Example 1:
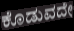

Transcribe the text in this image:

ಕೊಡುವದೇ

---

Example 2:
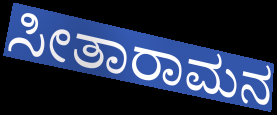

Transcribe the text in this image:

ಸೀತಾರಾಮನ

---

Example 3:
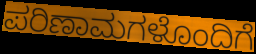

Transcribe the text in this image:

ಪರಿಣಾಮಗಳೊಂದಿಗೆ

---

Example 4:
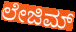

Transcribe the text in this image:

ಲೇಜಿಮ್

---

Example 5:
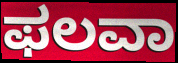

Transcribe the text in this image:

ಫಲವಾ